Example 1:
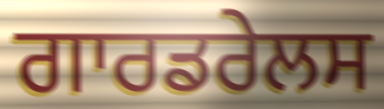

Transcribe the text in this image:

ਗਾਰਡਰੇਲਸ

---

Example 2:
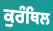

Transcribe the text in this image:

ਕੁਰੰਥਿਲ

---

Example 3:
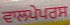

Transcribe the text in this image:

ਵਾਲਪੇਪਰਸ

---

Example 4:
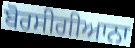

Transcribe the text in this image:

ਬੋਰਸੀਗੀਆਨਾ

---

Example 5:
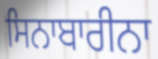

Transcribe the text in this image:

ਸਿਨਾਬਾਰੀਨਾ